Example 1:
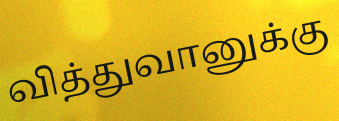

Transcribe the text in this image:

வித்துவானுக்கு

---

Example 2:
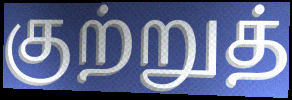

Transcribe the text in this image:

குற்றுத்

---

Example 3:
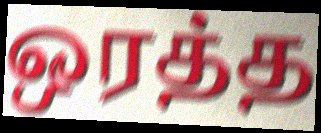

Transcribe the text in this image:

ஒரத்த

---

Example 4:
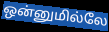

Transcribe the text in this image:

ஒன்னுமில்லே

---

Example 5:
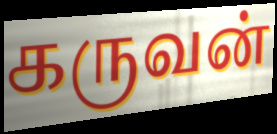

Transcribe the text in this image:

கருவன்